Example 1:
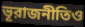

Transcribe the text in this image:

ভূরাজনীতিও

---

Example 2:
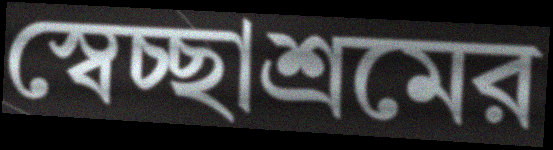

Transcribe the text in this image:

স্বেচ্ছাশ্রমের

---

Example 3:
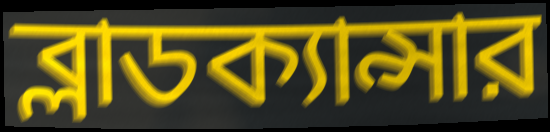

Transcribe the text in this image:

ব্লাডক্যান্সার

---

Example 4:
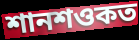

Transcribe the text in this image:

শানশওকত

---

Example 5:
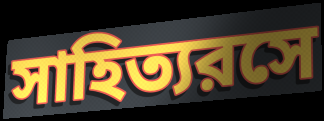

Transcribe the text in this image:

সাহিত্যরসে